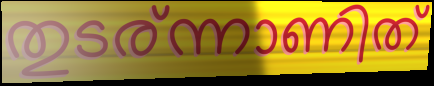
തുടര്ന്നാണിത്